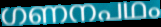
ഗണനപഥം